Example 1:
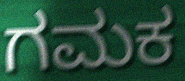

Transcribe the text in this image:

ಗಮಕ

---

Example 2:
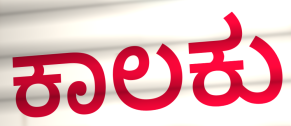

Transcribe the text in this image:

ಕಾಲಕು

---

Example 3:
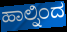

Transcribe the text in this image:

ಹಾಲ್ನಿಂದ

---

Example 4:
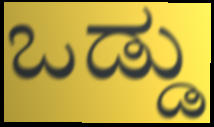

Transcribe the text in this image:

ಒಡ್ಡು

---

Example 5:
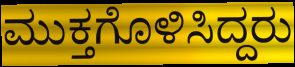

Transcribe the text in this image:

ಮುಕ್ತಗೊಳಿಸಿದ್ದರು